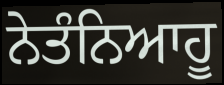
ਨੇਤੰਨਿਆਹੂ